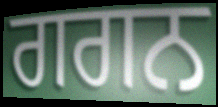
ਗਗਨ